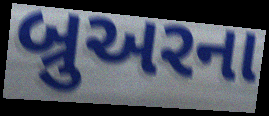
બ્રુઅરના